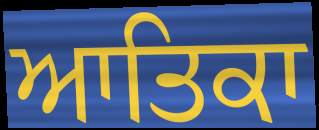
ਆਤਿਕਾ